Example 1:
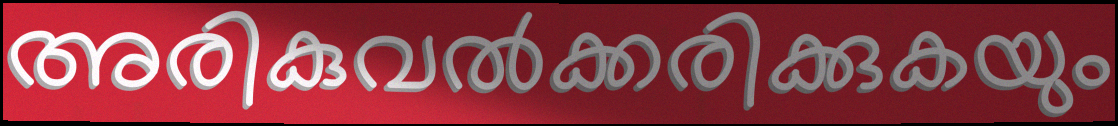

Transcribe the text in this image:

അരികുവൽക്കരിക്കുകയും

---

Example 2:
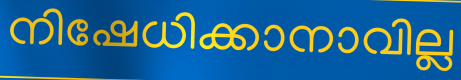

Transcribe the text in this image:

നിഷേധിക്കാനാവില്ല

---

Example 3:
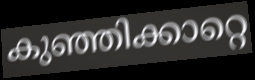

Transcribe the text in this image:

കുഞ്ഞിക്കാറ്റെ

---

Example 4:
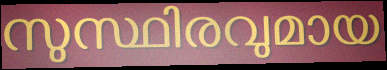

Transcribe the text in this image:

സുസ്ഥിരവുമായ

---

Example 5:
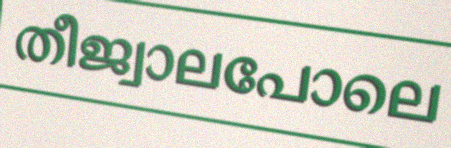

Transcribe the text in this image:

തീജ്വാലപോലെ